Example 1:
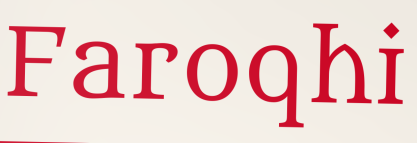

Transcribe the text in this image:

Faroqhi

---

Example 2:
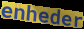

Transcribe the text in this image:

enheder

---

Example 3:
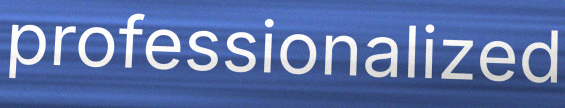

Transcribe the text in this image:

professionalized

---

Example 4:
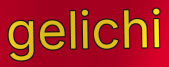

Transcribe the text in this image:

gelichi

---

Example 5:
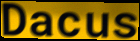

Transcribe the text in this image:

Dacus